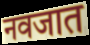
नवजात